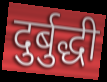
दुर्बुद्धी